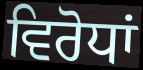
ਵਿਰੋਧਾਂ